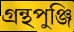
গ্রন্থপুঞ্জি